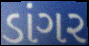
ડાંગર